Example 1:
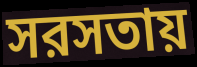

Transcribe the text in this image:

সরসতায়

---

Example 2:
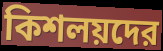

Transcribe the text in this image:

কিশলয়দের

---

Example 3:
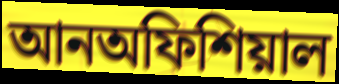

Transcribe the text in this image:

আনঅফিশিয়াল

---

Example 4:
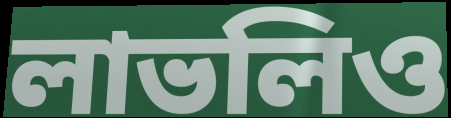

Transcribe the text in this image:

লাভলিও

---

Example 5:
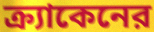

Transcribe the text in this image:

ক্র্যাকেনের